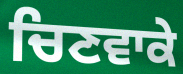
ਚਿਣਵਾਕੇ